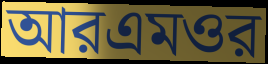
আরএমওর